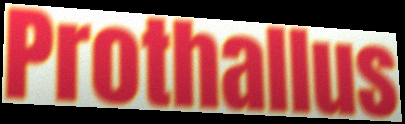
Prothallus